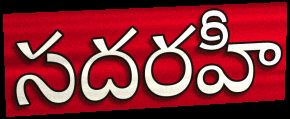
సదరహీ